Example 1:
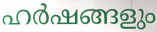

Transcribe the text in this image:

ഹർഷങ്ങളും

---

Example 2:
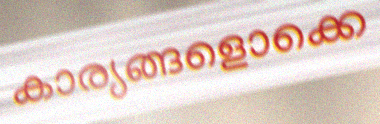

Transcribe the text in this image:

കാര്യങ്ങളൊക്കെ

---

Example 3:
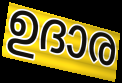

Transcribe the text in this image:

ഉദാര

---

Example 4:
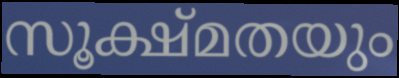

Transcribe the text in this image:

സൂക്ഷ്മതയും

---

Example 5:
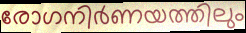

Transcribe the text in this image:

രോഗനിർണയത്തിലും